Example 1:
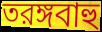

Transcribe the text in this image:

তরঙ্গবাহু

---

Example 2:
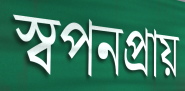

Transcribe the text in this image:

স্বপনপ্রায়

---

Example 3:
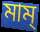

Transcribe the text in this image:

মাম্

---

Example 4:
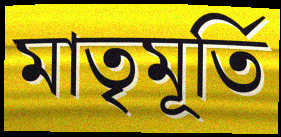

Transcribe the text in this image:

মাতৃমূর্তি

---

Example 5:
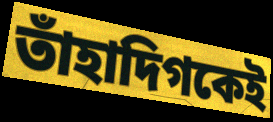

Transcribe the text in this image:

তাঁহাদিগকেই